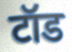
टॉड